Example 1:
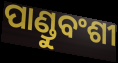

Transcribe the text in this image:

ପାଣ୍ଡୁବଂଶୀ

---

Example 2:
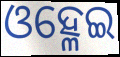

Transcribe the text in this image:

ଓହ୍ଳେଇ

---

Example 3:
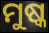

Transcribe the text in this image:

ମୁଷ୍କ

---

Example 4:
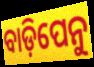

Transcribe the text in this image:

ବାଡ଼ିପେନୁ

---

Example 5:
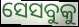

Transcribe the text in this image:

ସେସବୁକୁ